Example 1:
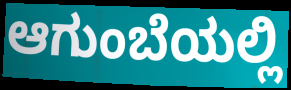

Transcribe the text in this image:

ಆಗುಂಬೆಯಲ್ಲಿ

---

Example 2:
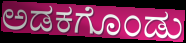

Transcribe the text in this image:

ಅಡಕಗೊಂಡು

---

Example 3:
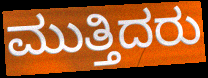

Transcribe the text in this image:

ಮುತ್ತಿದರು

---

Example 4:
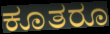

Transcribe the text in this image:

ಕೂತರೂ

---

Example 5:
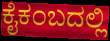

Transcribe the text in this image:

ಕೈಕಂಬದಲ್ಲಿ